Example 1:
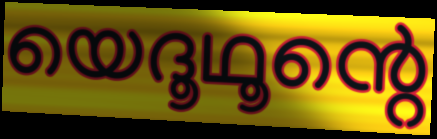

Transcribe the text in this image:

യെദൂഥൂന്റെ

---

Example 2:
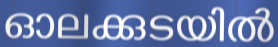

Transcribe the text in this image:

ഓലക്കുടയിൽ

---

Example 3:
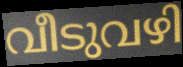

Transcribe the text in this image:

വീടുവഴി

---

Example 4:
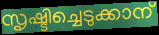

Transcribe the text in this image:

സൃഷ്ടിച്ചെടുക്കാന്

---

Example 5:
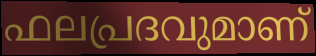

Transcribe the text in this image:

ഫലപ്രദവുമാണ്